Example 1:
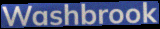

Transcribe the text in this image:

Washbrook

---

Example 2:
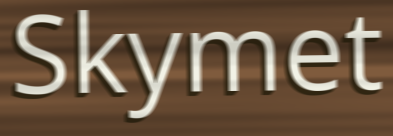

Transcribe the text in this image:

Skymet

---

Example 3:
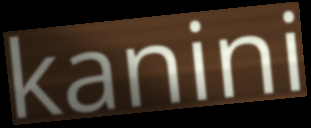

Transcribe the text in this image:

kanini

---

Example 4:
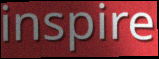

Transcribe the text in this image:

inspire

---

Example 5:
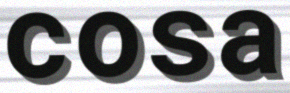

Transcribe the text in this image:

cosa